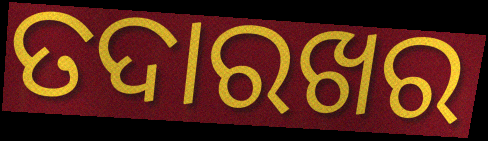
ତଦାରଖର